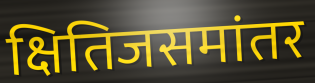
क्षितिजसमांतर